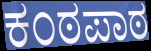
ಕಂಠಪಾಠ